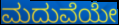
ಮದುವೆಯೇ